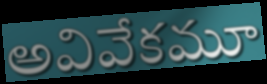
అవివేకమూ